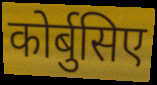
कोर्बुसिए